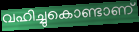
വഹിച്ചുകൊണ്ടാണ്